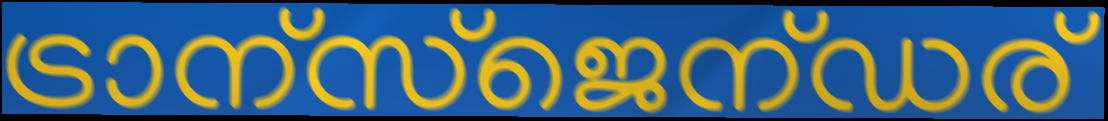
ട്രാന്സ്ജെന്ഡര്